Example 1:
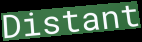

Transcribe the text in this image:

Distant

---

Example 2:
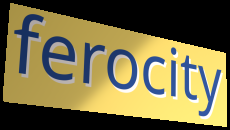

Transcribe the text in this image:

ferocity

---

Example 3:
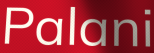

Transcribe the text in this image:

Palani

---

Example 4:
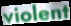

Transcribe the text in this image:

violent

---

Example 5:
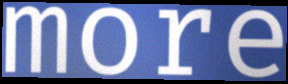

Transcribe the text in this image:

more